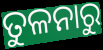
ତୁଳନାରୁ